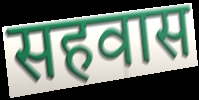
सहवास